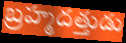
బ్రహ్మదత్తుడు